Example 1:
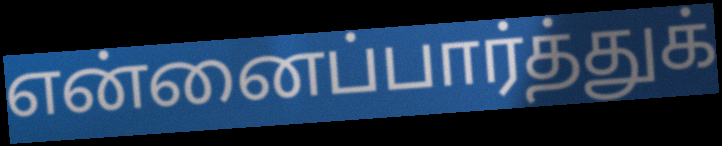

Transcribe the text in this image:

என்னைப்பார்த்துக்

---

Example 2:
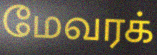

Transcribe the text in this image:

மேவரக்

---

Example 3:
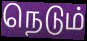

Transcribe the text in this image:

நெடும்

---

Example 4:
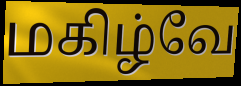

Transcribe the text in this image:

மகிழ்வே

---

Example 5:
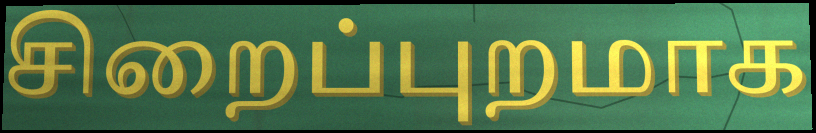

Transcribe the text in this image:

சிறைப்புறமாக